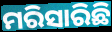
ମରିସାରିଛି